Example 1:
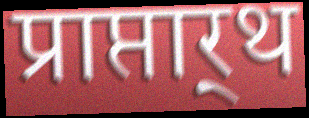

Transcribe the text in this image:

प्राप्तार्थ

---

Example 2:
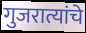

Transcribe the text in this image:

गुजरात्यांचे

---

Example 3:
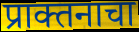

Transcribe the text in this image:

प्राक्तनाचा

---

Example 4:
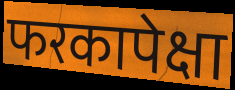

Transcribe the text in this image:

फरकापेक्षा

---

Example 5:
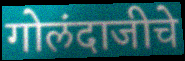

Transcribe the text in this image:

गोलंदाजीचे